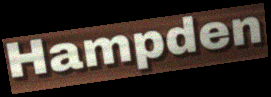
Hampden